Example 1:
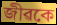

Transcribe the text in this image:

জীৱকে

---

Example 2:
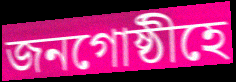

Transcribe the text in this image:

জনগোষ্ঠীহে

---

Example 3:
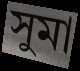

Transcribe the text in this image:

সুমা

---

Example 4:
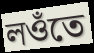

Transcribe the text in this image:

লওঁতে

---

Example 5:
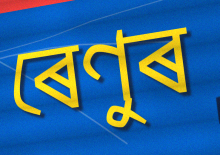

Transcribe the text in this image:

ৰেণুৰ